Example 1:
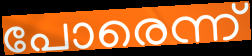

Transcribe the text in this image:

പോരെന്ന്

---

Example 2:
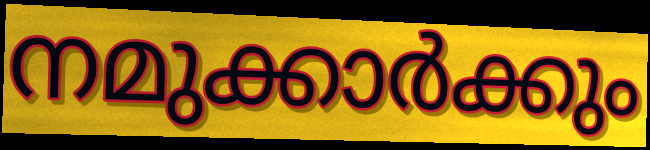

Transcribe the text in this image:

നമുക്കാർക്കും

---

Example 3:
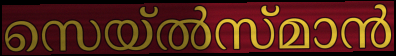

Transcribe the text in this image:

സെയ്ൽസ്മാൻ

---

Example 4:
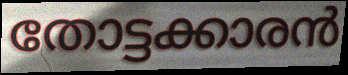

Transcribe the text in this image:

തോട്ടക്കാരൻ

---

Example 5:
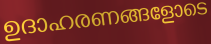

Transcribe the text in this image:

ഉദാഹരണങ്ങളോടെ